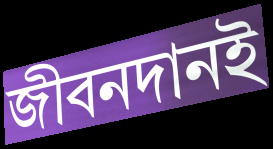
জীবনদানই